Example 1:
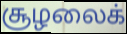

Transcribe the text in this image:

சூழலைக்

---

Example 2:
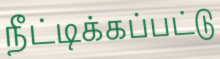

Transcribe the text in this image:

நீட்டிக்கப்பட்டு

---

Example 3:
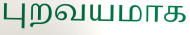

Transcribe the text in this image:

புறவயமாக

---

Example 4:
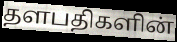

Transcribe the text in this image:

தளபதிகளின்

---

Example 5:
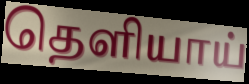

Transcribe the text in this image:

தெளியாய்